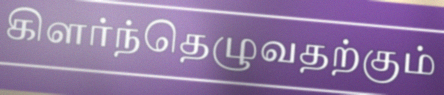
கிளர்ந்தெழுவதற்கும்